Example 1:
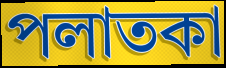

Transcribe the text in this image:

পলাতকা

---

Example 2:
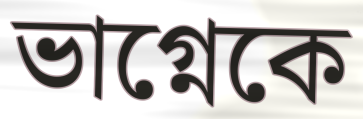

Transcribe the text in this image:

ভাগ্নেকে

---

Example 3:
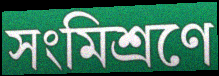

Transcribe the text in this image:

সংমিশ্রণে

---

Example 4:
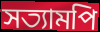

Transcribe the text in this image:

সত্যামপি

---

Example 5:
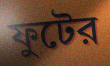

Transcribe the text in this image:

ফুটের